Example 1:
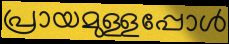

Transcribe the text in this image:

പ്രായമുള്ളപ്പോൾ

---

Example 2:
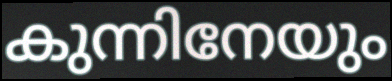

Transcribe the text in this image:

കുന്നിനേയും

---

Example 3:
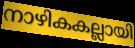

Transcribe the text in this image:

നാഴികകല്ലായി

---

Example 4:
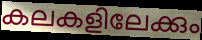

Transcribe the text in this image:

കലകളിലേക്കും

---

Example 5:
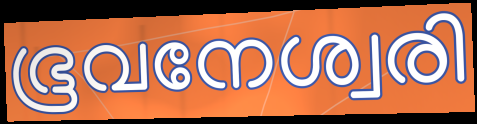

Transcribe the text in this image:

ഭൂവനേശ്വരി